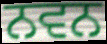
ਨਵਨ